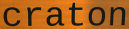
craton